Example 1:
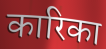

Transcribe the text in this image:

कारिका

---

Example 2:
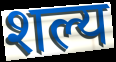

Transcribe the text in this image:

शल्‍य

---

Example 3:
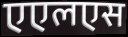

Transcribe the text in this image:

एएलएस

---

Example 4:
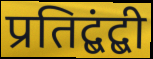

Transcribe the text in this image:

प्रतिद्बंद्बी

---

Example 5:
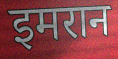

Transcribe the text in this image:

इमरान